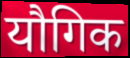
यौगिक